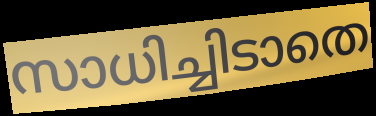
സാധിച്ചിടാതെ